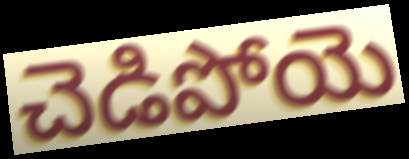
చెడిపోయె